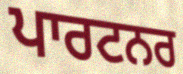
ਪਾਰਟਨਰ